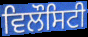
ਵਿਲੌਸਿਟੀ